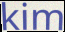
kim